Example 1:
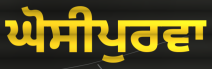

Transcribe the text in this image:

ਘੋਸੀਪੁਰਵਾ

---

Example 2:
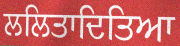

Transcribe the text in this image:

ਲਲਿਤਾਦਿਤਿਆ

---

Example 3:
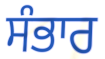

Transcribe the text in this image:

ਸੰਭਾਰ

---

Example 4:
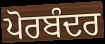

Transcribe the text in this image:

ਪੋਰਬੰਦਰ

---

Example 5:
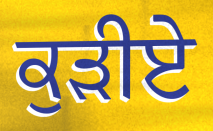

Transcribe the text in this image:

ਕੁੜੀਏ